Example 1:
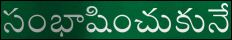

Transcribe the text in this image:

సంభాషించుకునే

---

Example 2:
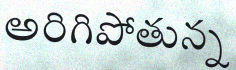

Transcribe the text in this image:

అరిగిపోతున్న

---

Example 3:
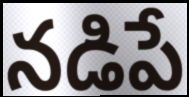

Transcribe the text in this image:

నడిపే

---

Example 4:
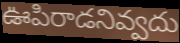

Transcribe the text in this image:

ఊపిరాడనివ్వదు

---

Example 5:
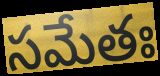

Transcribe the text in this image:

సమేతః